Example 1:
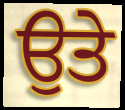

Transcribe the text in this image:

ਉਤੇ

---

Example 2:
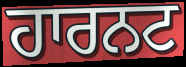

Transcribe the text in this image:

ਹਾਰਨਟ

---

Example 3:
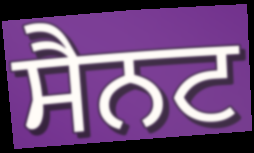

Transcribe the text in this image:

ਸੈਨਟ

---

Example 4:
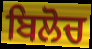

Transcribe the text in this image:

ਬਿਲੋਚ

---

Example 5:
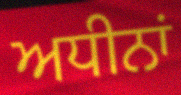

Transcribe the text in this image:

ਅਧੀਨਾਂ